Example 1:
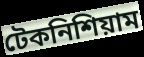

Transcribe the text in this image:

টেকনিশিয়াম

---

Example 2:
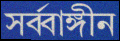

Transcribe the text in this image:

সর্ব্বাঙ্গীন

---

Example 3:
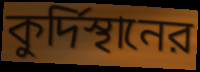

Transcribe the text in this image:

কুর্দিস্থানের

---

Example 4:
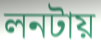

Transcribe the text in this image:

লনটায়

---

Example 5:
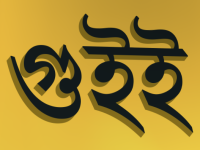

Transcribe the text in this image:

গুইই